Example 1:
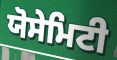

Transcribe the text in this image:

ਯੋਸੇਮਿਟੀ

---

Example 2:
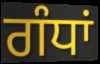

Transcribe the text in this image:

ਗੰਧਾਂ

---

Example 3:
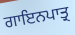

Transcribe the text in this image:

ਗਾਇਨਪਾਤ੍ਰ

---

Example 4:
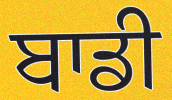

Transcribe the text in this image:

ਬਾਡੀ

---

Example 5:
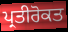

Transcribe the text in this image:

ਪ੍ਰਤੀਰੋਕਤ